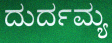
ದುರ್ದಮ್ಯ